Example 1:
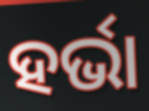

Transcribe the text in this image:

ହର୍ଭା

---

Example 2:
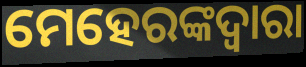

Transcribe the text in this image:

ମେହେରଙ୍କଦ୍ଵାରା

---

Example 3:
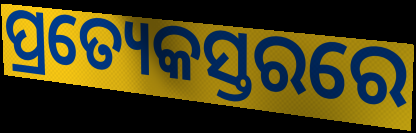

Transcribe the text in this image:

ପ୍ରତ୍ୟେକସ୍ତରରେ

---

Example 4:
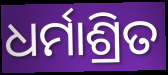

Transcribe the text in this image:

ଧର୍ମାଶ୍ରିତ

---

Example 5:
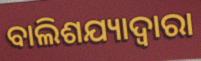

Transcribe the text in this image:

ବାଲିଶଯ୍ୟାଦ୍ଵାରା